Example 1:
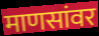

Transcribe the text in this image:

माणसांवर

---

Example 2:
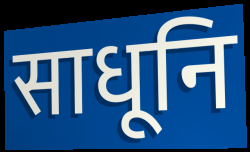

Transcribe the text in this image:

साधूनि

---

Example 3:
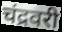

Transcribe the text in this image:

चंद्रवरी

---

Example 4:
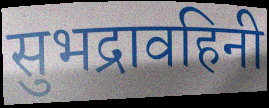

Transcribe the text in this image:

सुभद्रावहिनी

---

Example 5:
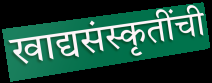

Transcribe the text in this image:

खाद्यसंस्कृतींची